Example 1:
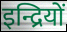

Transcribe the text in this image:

इन्द्रियों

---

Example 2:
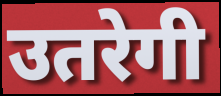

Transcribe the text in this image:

उतरेगी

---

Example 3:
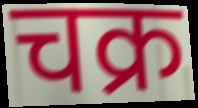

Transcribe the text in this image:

चक्र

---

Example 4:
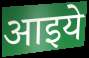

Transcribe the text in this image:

आइये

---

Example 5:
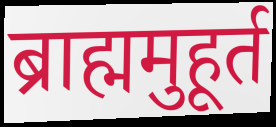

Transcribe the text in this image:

ब्राह्ममुहूर्त